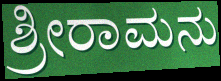
ಶ್ರೀರಾಮನು